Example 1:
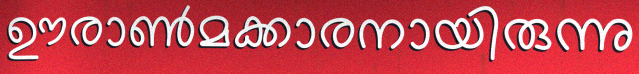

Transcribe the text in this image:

ഊരാൺമക്കാരനായിരുന്നു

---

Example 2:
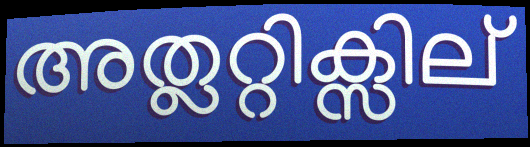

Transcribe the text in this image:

അത്ലറ്റിക്സില്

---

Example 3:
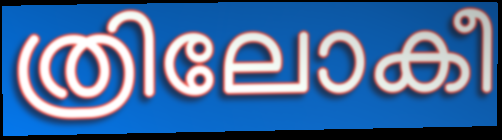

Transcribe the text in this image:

ത്രിലോകീ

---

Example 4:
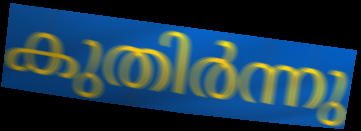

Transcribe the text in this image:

കുതിർന്നു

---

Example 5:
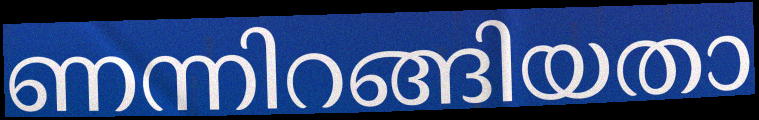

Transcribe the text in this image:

ണന്നിറങ്ങിയതാ